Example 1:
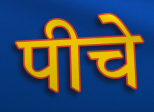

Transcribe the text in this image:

पीचे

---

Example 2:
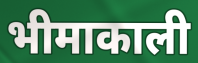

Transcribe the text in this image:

भीमाकाली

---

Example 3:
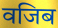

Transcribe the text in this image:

वजिब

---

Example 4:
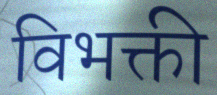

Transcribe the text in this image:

विभक्ती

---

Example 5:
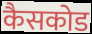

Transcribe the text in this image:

कैसकोड